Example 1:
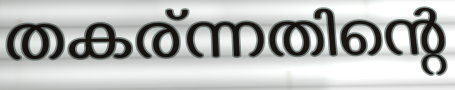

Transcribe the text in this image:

തകര്ന്നതിന്റെ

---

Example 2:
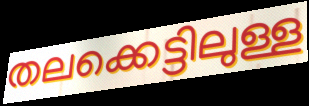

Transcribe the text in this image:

തലക്കെട്ടിലുള്ള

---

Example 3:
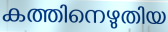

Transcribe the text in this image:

കത്തിനെഴുതിയ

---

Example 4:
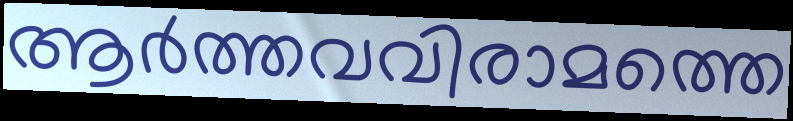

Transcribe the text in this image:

ആർത്തവവിരാമത്തെ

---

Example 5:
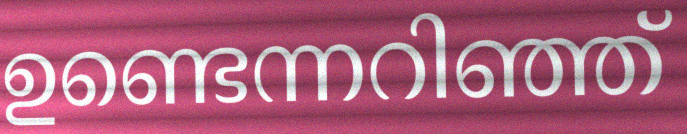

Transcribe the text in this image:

ഉണ്ടെന്നറിഞ്ഞ്